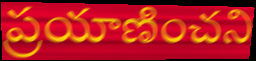
ప్రయాణించని